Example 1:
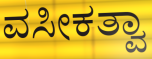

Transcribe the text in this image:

ವಸೀಕತ್ವಾ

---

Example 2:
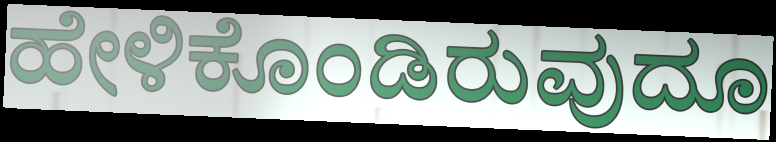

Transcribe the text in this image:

ಹೇಳಿಕೊಂಡಿರುವುದೂ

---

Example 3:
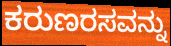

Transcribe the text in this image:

ಕರುಣರಸವನ್ನು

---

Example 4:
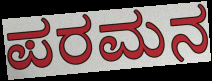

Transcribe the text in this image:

ಪರಮನ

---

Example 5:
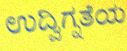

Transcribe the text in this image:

ಉದ್ವಿಗ್ನತೆಯ